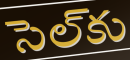
సెల్‌కు